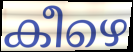
കീഴെ